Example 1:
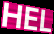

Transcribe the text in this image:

HEL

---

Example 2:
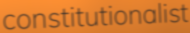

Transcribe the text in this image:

constitutionalist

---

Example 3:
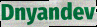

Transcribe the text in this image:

Dnyandev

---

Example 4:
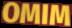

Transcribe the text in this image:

OMIM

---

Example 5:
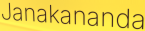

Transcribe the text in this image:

Janakananda